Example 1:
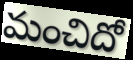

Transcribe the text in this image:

మంచిదో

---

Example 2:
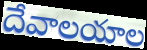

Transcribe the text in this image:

దేవాలయాల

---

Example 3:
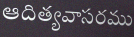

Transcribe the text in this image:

ఆదిత్యవాసరము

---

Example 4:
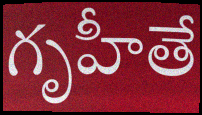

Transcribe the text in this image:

గృహీతే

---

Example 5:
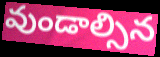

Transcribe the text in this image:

వుండాల్సిన